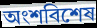
অংশবিশেষ